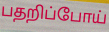
பதறிப்போய்